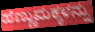
ಹೆಣ್ಣುಮಕ್ಕಳನ್ನು